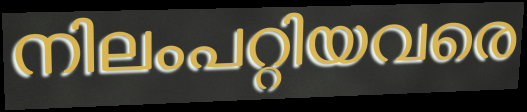
നിലംപറ്റിയവരെ